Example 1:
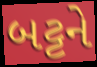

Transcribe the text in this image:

બટ્ટને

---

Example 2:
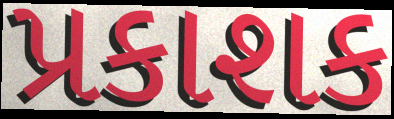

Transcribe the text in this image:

પ્રકાશક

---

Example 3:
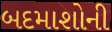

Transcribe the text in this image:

બદમાશોની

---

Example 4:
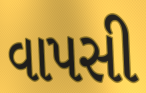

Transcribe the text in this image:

વાપસી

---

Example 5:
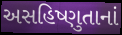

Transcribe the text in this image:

અસહિષ્ણુતાનાં